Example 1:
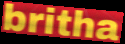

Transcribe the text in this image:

britha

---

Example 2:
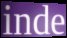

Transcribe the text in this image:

inde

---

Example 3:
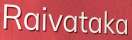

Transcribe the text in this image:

Raivataka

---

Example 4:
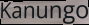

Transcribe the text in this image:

Kanungo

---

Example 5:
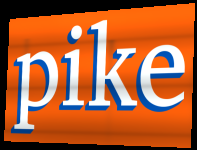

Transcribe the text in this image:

pike